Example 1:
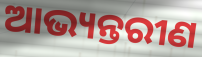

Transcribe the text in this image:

ଆଭ୍ୟନ୍ତରୀଣ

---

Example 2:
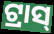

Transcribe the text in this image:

ଟ୍ରାସ୍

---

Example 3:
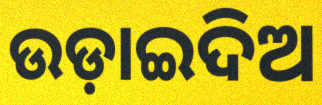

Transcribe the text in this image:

ଉଡ଼ାଇଦିଅ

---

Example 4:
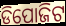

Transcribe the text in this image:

ଡିପୋଜିଟ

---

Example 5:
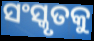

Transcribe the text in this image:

ସଂସ୍କୃତକୁ